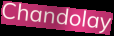
Chandolay